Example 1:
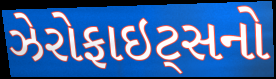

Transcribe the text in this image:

ઝેરોફાઇટ્સનો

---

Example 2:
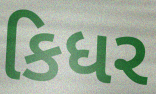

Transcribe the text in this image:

કિધર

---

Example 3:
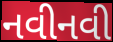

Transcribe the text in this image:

નવીનવી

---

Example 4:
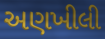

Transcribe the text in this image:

અણખીલી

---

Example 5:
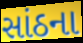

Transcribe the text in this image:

સાંઠના